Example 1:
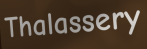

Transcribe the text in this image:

Thalassery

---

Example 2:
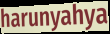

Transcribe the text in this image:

harunyahya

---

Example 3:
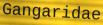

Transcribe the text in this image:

Gangaridae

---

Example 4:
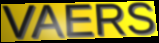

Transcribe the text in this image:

VAERS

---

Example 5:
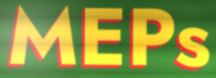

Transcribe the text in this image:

MEPs